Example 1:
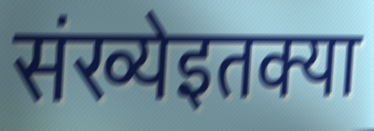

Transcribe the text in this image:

संख्येइतक्या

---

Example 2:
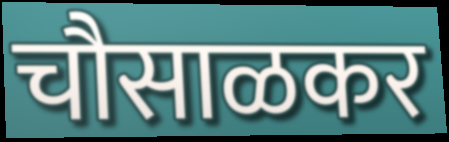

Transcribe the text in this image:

चौसाळकर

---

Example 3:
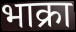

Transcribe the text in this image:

भाक्रा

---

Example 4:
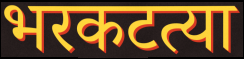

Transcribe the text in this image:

भरकटत्या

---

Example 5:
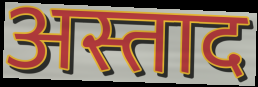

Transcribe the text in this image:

अस्ताद